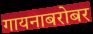
गायनाबरोबर